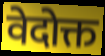
वेदोक्त